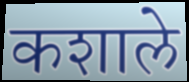
कशाले